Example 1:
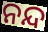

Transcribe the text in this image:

ନନ୍ଦ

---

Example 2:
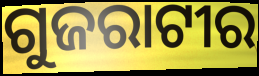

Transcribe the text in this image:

ଗୁଜରାଟୀର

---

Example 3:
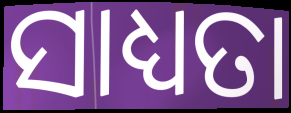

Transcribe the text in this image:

ସାଧ୍ୟତା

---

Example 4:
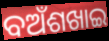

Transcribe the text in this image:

ବଅଁଶଖାଇ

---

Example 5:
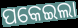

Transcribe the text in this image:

ପକେଇଲା